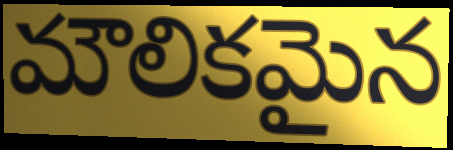
మౌలికమైన